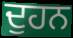
ਦੁਹਨ